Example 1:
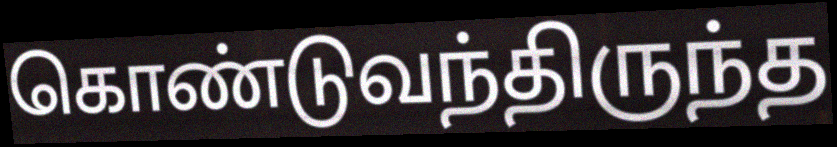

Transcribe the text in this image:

கொண்டுவந்திருந்த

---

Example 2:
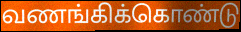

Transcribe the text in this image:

வணங்கிக்கொண்டு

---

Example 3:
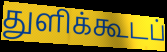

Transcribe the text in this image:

துளிக்கூடப்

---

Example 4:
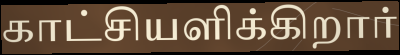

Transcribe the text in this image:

காட்சியளிக்கிறார்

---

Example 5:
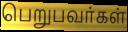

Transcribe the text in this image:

பெறுபவர்கள்